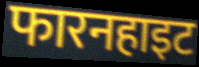
फारनहाइट